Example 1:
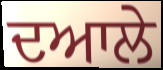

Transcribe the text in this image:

ਦਆਲੇ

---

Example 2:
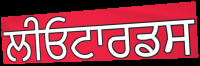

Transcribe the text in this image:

ਲੀਓਟਾਰਡਸ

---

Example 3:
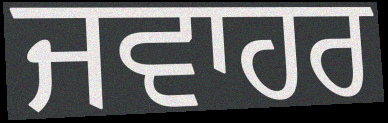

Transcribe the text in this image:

ਜਵਾਹਰ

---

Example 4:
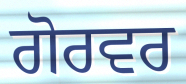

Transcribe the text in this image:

ਗੋਰਵਰ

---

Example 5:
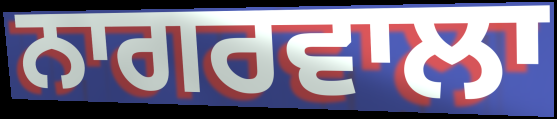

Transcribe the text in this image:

ਨਾਗਰਵਾਲਾ